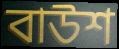
বাউশ